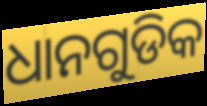
ଧାନଗୁଡିକ